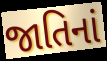
જાતિનાં